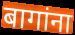
बागांना